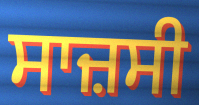
ਸਾਜ਼ਸੀ